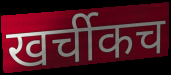
खर्चीकच